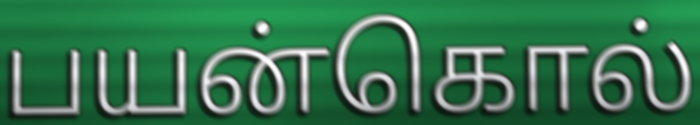
பயன்கொல்